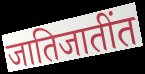
जातिजातींत